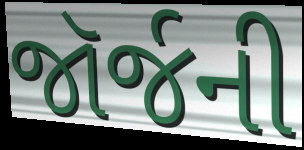
જૉર્જની